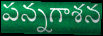
పన్నగాశన